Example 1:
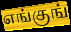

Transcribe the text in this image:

எங்குங்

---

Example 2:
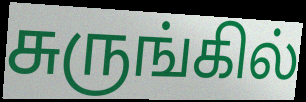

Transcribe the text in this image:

சுருங்கில்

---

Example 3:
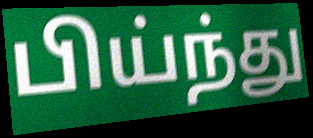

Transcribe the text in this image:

பிய்ந்து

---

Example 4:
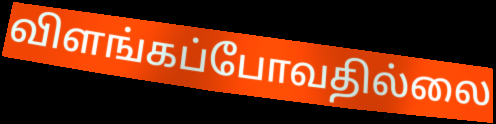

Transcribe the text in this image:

விளங்கப்போவதில்லை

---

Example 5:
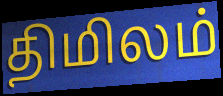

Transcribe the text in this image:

திமிலம்